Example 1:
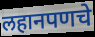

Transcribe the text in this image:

लहानपणचे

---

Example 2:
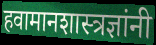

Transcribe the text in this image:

हवामानशास्त्रज्ञांनी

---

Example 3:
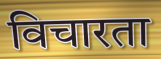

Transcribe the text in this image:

विचारता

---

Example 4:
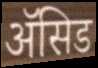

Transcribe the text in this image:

ॲसिड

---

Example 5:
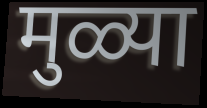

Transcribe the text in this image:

मुळ्या